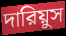
দারিয়ুস